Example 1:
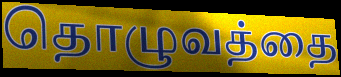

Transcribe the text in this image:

தொழுவத்தை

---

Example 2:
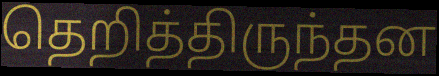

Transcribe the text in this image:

தெறித்திருந்தன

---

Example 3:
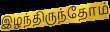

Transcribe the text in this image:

இழந்திருந்தோம்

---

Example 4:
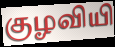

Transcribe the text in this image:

குழவியி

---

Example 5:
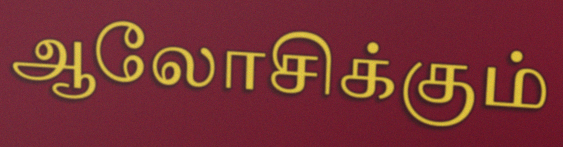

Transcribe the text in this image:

ஆலோசிக்கும்